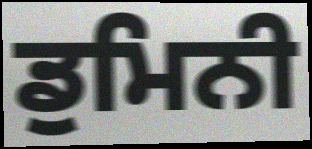
ਡੁਮਿਨੀ